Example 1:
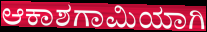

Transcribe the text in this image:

ಆಕಾಶಗಾಮಿಯಾಗಿ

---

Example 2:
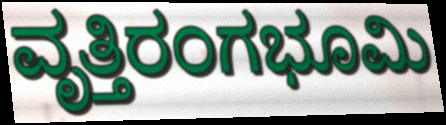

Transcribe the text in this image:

ವೃತ್ತಿರಂಗಭೂಮಿ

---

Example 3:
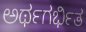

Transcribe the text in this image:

ಅರ್ಥಗರ್ಭಿತ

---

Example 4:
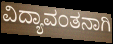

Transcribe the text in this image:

ವಿದ್ಯಾವಂತನಾಗಿ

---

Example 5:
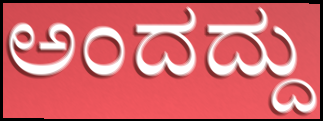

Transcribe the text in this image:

ಅಂದದ್ದು